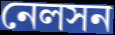
নেলসন